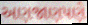
અણજાણપણે